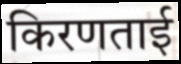
किरणताई